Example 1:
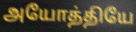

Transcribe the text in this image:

அயோத்தியே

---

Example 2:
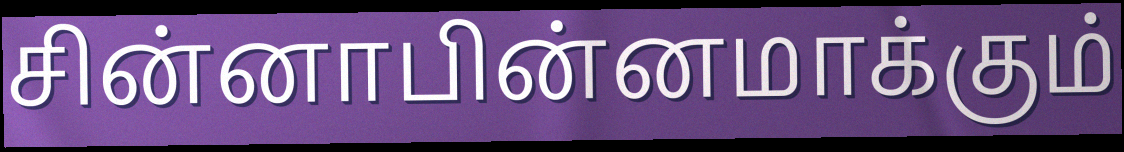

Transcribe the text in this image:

சின்னாபின்னமாக்கும்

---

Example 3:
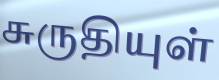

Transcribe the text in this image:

சுருதியுள்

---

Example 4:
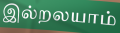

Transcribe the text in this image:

இல்றலயாம்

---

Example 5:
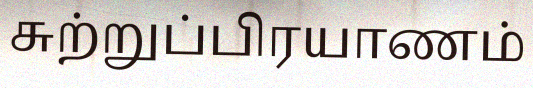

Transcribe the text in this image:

சுற்றுப்பிரயாணம்